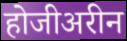
होजीअरीन